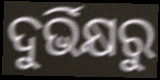
ଦୁର୍ଭିକ୍ଷରୁ